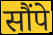
सौंपे